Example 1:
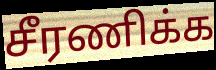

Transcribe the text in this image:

சீரணிக்க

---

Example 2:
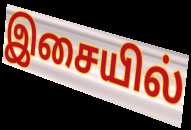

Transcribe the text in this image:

இசையில்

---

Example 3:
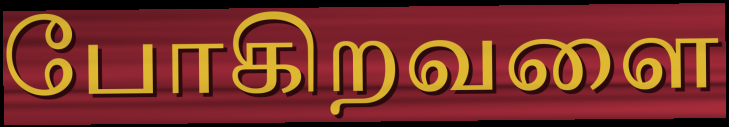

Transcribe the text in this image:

போகிறவளை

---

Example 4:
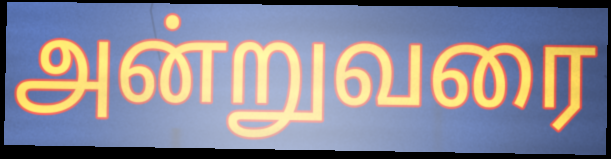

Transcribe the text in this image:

அன்றுவரை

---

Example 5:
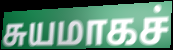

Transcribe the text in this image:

சுயமாகச்